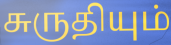
சுருதியும்